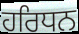
ਹਰਿਧਨ